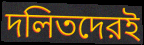
দলিতদেরই